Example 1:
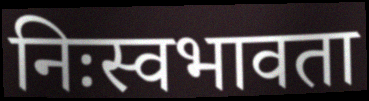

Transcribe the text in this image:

निःस्वभावता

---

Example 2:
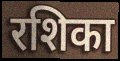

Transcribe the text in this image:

रशिका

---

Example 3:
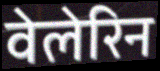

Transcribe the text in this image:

वेलेरिन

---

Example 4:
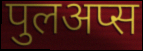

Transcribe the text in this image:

पुलअप्स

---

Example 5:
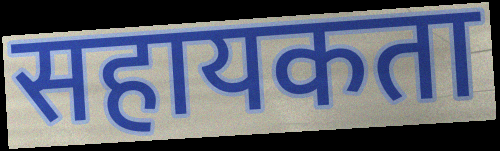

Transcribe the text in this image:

सहायकता